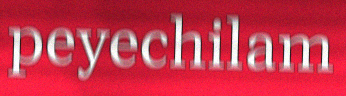
peyechilam